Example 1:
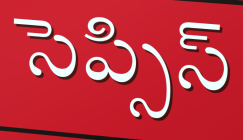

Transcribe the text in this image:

సెప్సిస్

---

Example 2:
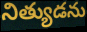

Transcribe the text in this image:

నిత్యుడను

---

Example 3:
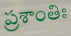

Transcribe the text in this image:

ప్రశాంతిః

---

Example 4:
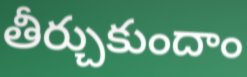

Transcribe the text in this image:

తీర్చుకుందాం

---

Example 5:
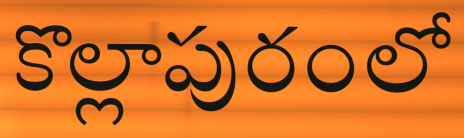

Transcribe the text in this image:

కొల్లాపురంలో